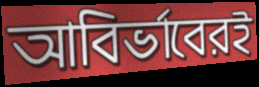
আবির্ভাবেরই